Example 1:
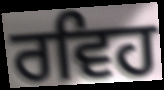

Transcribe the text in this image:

ਰਵਿਹ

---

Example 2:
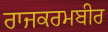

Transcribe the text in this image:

ਰਾਜਕਰਮਬੀਰ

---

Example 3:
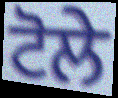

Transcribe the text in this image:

ਟੋਲੇ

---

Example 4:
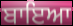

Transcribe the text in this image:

ਬਾਇਆ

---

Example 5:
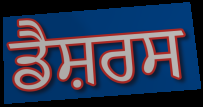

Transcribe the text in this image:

ਡੈਸ਼ਰਸ